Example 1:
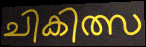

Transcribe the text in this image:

ചികിത്സ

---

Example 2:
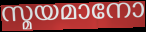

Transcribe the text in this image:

സ്മയമാനോ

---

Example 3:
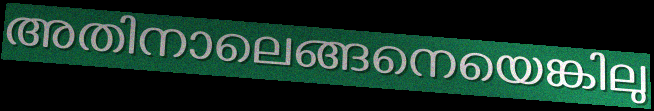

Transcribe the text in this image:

അതിനാലെങ്ങനെയെങ്കിലു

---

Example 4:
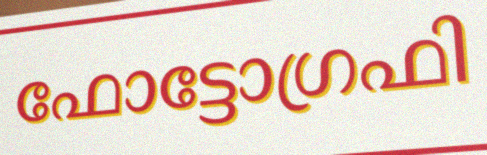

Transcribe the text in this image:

ഫോട്ടോഗ്രഫി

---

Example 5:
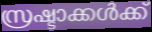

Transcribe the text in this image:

സ്രഷ്ടാക്കൾക്ക്